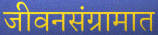
जीवनसंग्रामात